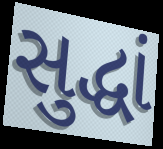
સુદ્ધાં